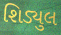
શિડ્યુલ